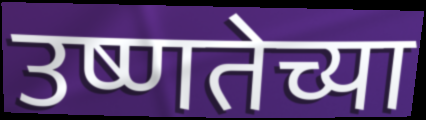
उष्णतेच्या